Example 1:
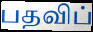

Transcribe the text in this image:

பதவிப்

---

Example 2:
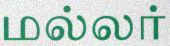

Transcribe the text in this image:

மல்லர்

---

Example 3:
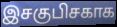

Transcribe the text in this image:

இசகுபிசகாக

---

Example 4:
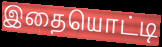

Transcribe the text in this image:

இதையொட்டி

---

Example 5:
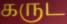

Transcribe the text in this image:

கருட